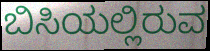
ಬಿಸಿಯಲ್ಲಿರುವ